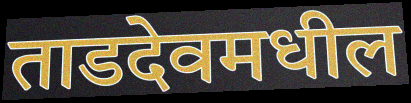
ताडदेवमधील